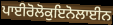
ਪਾਈਰੋਲੋਕੁਇਨੋਲਾਈਨ